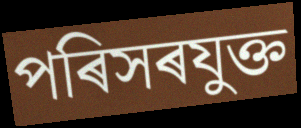
পৰিসৰযুক্ত